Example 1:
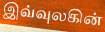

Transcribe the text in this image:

இவ்வுலகின்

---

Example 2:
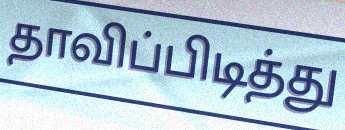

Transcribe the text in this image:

தாவிப்பிடித்து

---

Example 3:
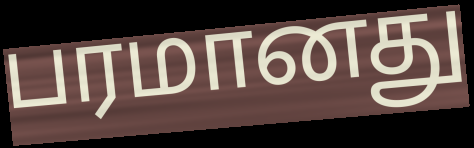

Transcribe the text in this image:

பரமானது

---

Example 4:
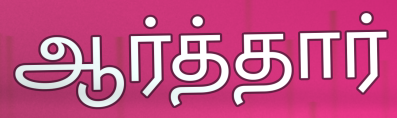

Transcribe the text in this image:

ஆர்த்தார்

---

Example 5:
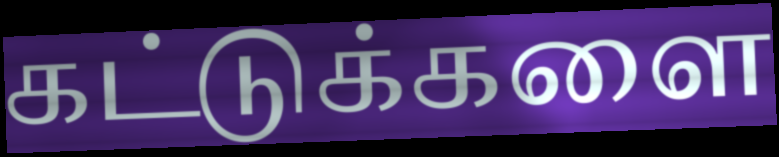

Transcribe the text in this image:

கட்டுக்களை